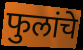
फुलांचे